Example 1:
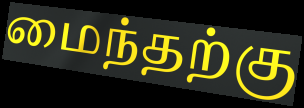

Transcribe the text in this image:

மைந்தற்கு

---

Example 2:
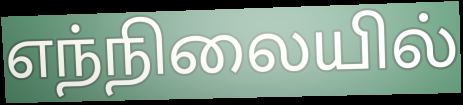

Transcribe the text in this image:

எந்நிலையில்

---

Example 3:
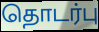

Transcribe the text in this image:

தொடர்பு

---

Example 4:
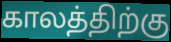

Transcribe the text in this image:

காலத்திற்கு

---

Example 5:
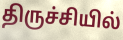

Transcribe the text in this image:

திருச்சியில்